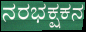
ನರಭಕ್ಷಕನ